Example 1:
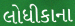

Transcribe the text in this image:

લોધીકાના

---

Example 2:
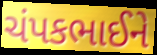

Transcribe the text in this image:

ચંપકભાઈને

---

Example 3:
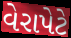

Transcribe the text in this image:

વેરાપેટે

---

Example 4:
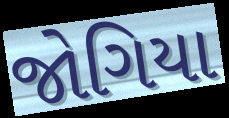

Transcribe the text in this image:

જોગિયા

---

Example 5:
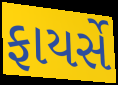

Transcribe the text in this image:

ફાયર્સે